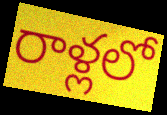
రాళ్లలో